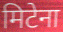
मिटेना